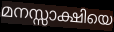
മനസ്സാക്ഷിയെ